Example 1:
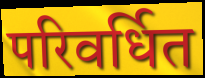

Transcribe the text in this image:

परिवर्धित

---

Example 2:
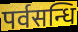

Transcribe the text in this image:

पर्वसन्धि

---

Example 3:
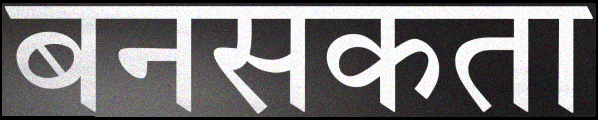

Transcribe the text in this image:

बनसकता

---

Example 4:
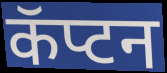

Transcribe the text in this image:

कॅप्टन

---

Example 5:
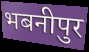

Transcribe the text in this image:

भबनीपुर